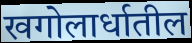
खगोलार्धातील